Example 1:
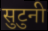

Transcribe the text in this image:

सुटुनी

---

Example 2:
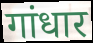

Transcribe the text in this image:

गांधार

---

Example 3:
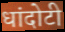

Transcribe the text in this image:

धांदोटी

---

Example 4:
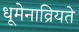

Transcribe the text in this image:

धूमेनाव्रियते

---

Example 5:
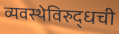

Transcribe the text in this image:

व्यवस्थेविरुद्धची